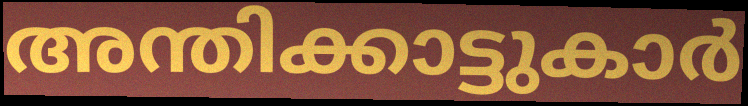
അന്തിക്കാട്ടുകാർ